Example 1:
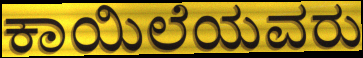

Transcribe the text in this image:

ಕಾಯಿಲೆಯವರು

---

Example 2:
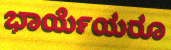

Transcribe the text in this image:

ಭಾರ್ಯೆಯರೂ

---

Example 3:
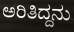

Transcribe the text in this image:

ಅರಿತಿದ್ದನು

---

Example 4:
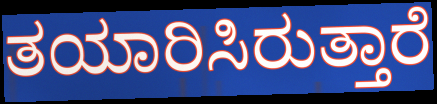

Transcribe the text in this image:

ತಯಾರಿಸಿರುತ್ತಾರೆ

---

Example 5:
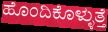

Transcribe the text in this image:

ಹೊಂದಿಕೊಳ್ಳುತ್ತೆ